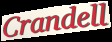
Crandell